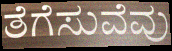
ತೆಗೆಸುವೆವು